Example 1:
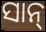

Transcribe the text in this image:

ସାନ୍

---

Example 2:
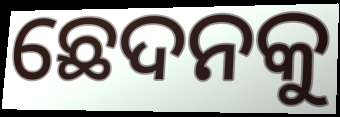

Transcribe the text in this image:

ଛେଦନକୁ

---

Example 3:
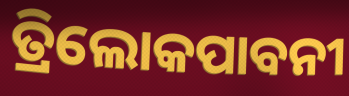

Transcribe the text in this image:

ତ୍ରିଲୋକପାବନୀ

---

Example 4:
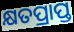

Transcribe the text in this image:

କ୍ଷତପ୍ରାପ୍ତ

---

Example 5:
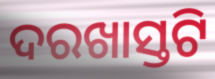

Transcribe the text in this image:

ଦରଖାସ୍ତଟି